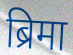
ब्रिमा